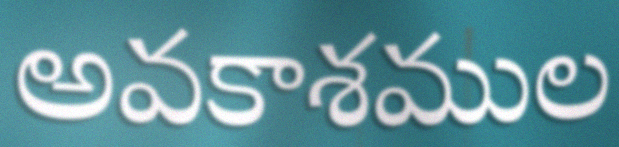
అవకాశముల